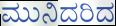
ಮುನಿದರಿದ